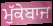
ਮੁੱਕੇਬਾਜ